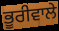
ਭੂਰੀਵਾਲੇ